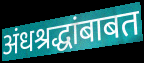
अंधश्रद्धांबाबत